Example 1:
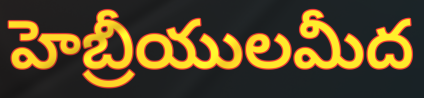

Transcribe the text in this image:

హెబ్రీయులమీద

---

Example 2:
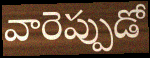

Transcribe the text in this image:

వారెప్పుడో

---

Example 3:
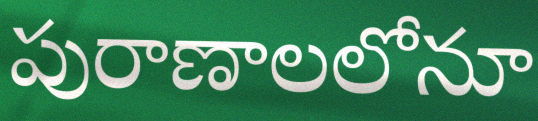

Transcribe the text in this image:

పురాణాలలోనూ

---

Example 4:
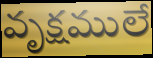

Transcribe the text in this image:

వృక్షములే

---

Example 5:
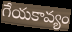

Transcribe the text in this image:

గేయకావ్యం